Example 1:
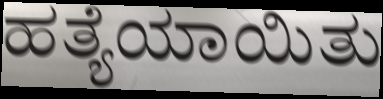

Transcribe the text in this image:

ಹತ್ಯೆಯಾಯಿತು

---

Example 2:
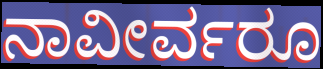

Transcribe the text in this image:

ನಾವೀರ್ವರೂ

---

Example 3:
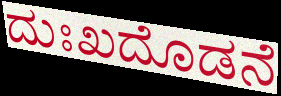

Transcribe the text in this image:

ದುಃಖದೊಡನೆ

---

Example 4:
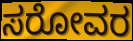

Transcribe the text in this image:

ಸರೋವರ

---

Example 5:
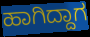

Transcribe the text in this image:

ಹಾಗಿದ್ದಾಗ